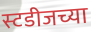
स्टडीजच्या